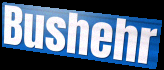
Bushehr